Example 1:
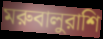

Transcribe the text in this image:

মরুবালুরাশি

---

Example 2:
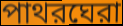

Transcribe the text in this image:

পাথরঘেরা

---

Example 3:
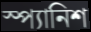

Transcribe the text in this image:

স্প্যানিশ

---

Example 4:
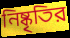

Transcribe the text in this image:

নিষ্কৃতির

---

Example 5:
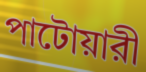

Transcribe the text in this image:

পাটোয়ারী